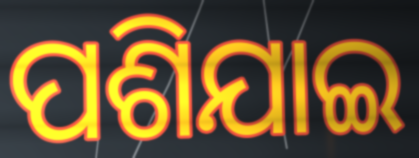
ପଶିଯାଇ